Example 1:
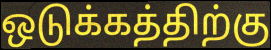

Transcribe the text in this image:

ஒடுக்கத்திற்கு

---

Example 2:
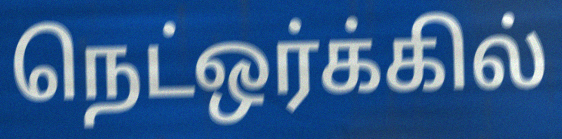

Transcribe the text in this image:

நெட்ஒர்க்கில்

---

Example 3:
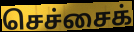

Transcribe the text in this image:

செச்சைக்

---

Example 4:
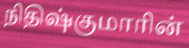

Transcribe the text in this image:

நிதிஷ்குமாரின்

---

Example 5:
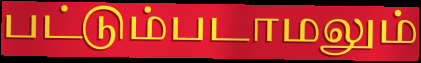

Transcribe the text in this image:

பட்டும்படாமலும்